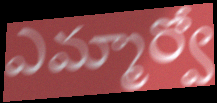
ఎమ్మార్వో